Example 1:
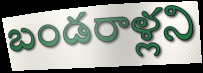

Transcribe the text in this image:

బండరాళ్లని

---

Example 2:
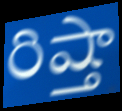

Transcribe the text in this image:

రిష్తా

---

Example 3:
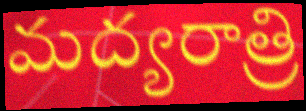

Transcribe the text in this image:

మద్యరాత్రి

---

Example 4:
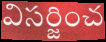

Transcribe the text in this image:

విసర్జించ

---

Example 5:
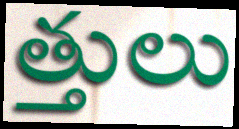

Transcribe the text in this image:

త్తులు